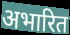
अभारित